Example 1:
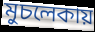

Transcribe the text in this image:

মুচলেকায়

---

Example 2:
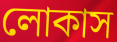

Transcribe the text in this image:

লোকাস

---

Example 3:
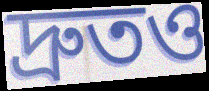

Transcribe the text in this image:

দ্রুতও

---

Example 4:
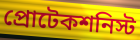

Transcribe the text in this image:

প্রোটেকশনিস্ট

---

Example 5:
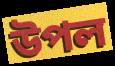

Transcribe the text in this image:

উপল